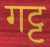
गट्ट